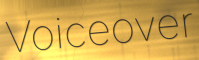
Voiceover